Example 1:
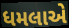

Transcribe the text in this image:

ધમલાએ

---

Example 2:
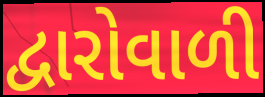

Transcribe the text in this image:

દ્વારોવાળી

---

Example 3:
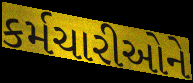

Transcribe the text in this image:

કર્મચારીઓને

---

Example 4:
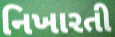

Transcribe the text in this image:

નિખારતી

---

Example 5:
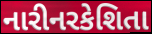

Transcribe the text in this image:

નારીનરકેશિતા